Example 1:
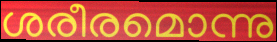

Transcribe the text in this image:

ശരീരമൊന്നു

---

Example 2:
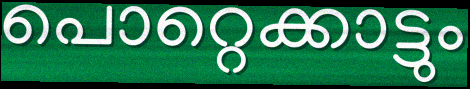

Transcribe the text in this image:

പൊറ്റെക്കാട്ടും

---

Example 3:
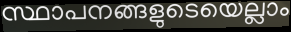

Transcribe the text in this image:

സ്ഥാപനങ്ങളുടെയെല്ലാം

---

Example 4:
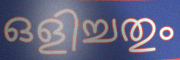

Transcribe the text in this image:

ഒളിച്ചതും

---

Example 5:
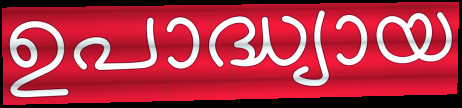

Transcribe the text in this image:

ഉപാദ്ധ്യായ